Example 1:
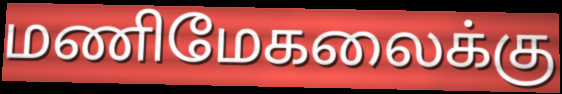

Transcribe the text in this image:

மணிமேகலைக்கு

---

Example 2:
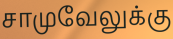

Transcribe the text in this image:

சாமுவேலுக்கு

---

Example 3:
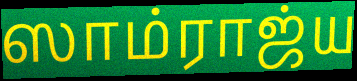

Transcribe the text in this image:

ஸாம்ராஜ்ய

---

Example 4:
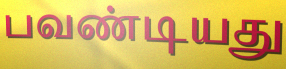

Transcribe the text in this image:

பவண்டியது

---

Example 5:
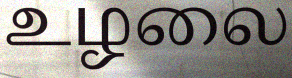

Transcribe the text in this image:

உழலை